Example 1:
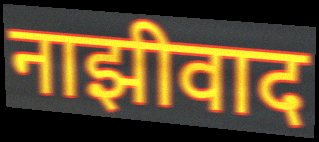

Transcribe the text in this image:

नाझीवाद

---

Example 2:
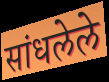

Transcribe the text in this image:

सांधलेले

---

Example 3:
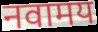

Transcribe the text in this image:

नवामय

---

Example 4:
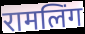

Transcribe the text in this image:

रामलिंग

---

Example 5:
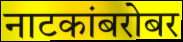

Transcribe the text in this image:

नाटकांबरोबर